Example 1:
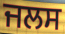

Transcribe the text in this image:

ਜਲਸ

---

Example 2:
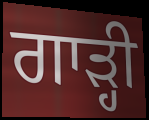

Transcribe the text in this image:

ਗਾੜ੍ਹੀ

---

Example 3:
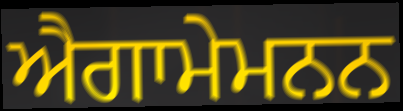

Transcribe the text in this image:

ਐਗਾਮੇਮਨਨ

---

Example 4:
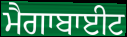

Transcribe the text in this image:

ਮੈਗਾਬਾਈਟ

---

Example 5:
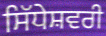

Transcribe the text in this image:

ਸਿੱਧੇਸ਼ਵਰੀ